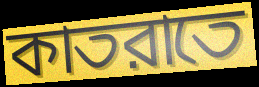
কাতরাতে